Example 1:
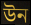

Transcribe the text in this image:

উন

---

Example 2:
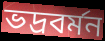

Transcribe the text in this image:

ভদ্রবর্মন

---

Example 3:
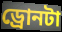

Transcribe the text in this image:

ড্রোনটা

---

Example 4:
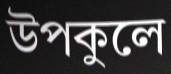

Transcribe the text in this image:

উপকুলে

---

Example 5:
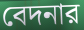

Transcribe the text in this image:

বেদনার